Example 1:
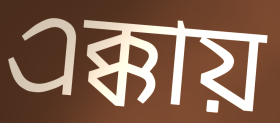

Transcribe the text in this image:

এক্কায়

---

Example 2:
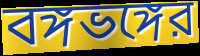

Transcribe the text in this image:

বঙ্গভঙ্গের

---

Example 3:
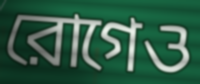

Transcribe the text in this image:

রোগেও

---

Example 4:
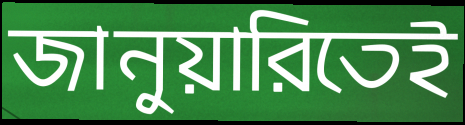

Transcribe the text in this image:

জানুয়ারিতেই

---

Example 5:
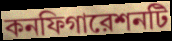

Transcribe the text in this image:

কনফিগারেশনটি